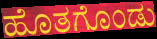
ಹೊತಗೊಂಡು